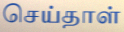
செய்தாள்